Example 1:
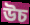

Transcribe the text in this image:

উচ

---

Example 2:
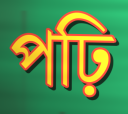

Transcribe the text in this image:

পঢ়ি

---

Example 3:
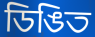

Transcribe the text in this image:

ডিঙিত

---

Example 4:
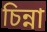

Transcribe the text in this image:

চিন্না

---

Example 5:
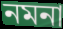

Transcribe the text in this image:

নমনা